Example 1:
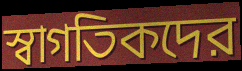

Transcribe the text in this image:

স্বাগতিকদের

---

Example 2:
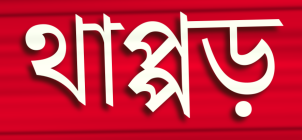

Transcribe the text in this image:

থাপ্পড়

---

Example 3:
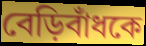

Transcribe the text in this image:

বেড়িবাঁধকে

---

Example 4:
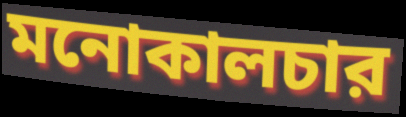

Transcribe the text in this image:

মনোকালচার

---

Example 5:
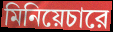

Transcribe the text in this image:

মিনিয়েচারে